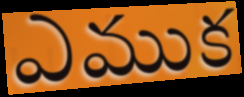
ఎముక